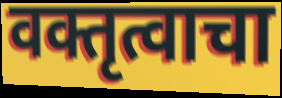
वक्तृत्वाचा